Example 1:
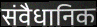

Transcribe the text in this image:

संवैधानिक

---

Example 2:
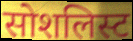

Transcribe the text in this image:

सोशलिस्ट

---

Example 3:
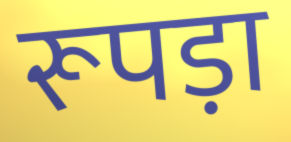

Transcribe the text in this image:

रूपड़ा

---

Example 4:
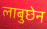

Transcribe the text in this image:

लाबुछेन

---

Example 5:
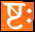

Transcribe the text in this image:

ष्टः